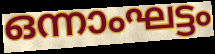
ഒന്നാംഘട്ടം